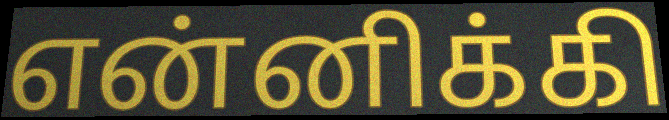
என்னிக்கி